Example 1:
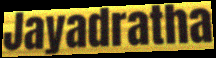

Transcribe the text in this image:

Jayadratha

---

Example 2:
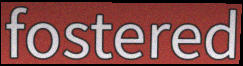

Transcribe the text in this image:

fostered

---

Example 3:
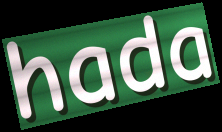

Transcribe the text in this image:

hada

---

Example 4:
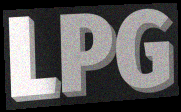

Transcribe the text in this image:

LPG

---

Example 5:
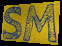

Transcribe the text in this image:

SM